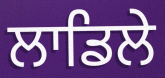
ਲਾਡਿਲੇ